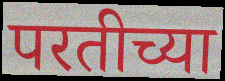
परतीच्या